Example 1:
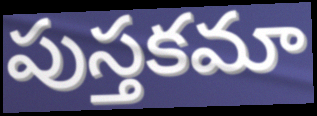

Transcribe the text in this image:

పుస్తకమా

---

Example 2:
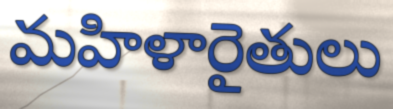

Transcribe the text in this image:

మహిళారైతులు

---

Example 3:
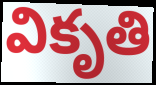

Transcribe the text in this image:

వికృతి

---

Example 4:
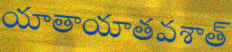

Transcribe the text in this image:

యాతాయాతవశాత్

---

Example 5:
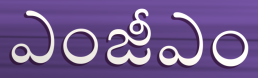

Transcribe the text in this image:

ఎంజీఎం